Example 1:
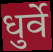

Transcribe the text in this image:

धुर्वे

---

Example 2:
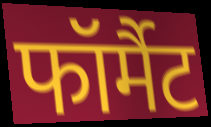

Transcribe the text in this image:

फॉर्मैट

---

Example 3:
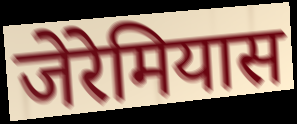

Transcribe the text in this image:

जेरेमियास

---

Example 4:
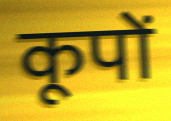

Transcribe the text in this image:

कूपों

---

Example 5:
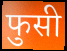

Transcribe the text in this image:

फुसी